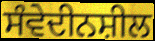
ਸੰਵੇਦੀਨਸ਼ੀਲ